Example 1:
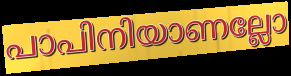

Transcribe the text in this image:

പാപിനിയാണല്ലോ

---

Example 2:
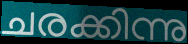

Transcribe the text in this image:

ചരക്കിന്നു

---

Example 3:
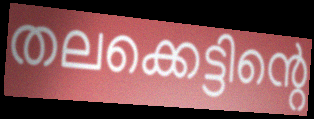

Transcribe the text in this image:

തലക്കെട്ടിന്റെ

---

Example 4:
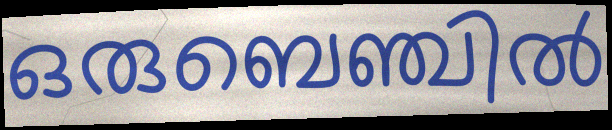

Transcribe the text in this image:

ഒരുബെഞ്ചിൽ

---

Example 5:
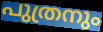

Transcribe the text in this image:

പുത്രനും